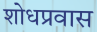
शोधप्रवास